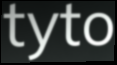
tyto